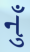
નુઁ